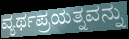
ವ್ಯರ್ಥಪ್ರಯತ್ನವನ್ನು